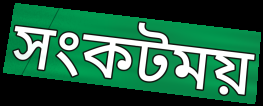
সংকটময়